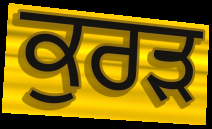
ਕੁਰੜ